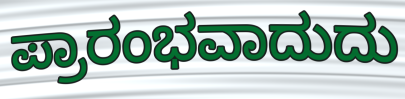
ಪ್ರಾರಂಭವಾದುದು